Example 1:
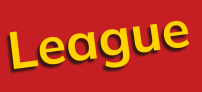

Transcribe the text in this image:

League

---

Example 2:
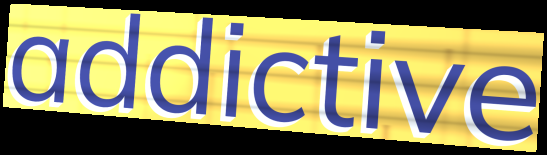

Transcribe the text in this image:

addictive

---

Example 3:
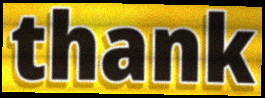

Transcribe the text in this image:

thank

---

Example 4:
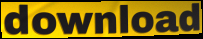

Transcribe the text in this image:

download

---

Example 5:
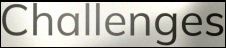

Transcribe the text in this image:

Challenges